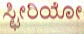
ಸ್ಟೀರಿಯೋ